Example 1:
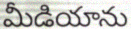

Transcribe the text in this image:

మీడియాను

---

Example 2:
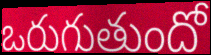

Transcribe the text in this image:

ఒరుగుతుందో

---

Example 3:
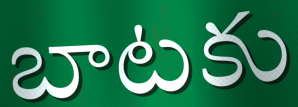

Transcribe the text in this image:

బాటకు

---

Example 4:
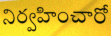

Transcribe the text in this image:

నిర్వహించారో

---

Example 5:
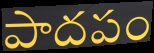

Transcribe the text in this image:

పాదపం